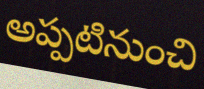
అప్పటినుంచి